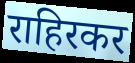
राहिरकर